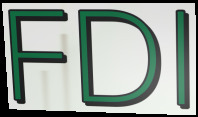
FDI